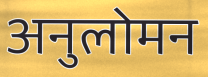
अनुलोमन